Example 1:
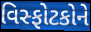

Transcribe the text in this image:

વિસ્ફોટકોને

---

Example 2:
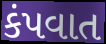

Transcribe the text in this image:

કંપવાત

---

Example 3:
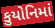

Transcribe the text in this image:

કુયોનિમાં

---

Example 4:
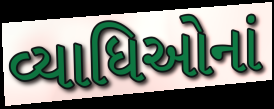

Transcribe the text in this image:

વ્યાધિઓનાં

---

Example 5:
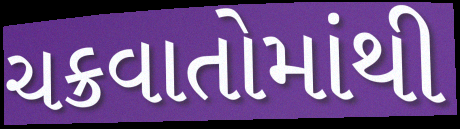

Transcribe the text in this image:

ચક્રવાતોમાંથી